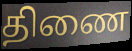
திணை